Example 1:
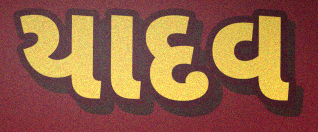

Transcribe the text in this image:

યાદવ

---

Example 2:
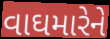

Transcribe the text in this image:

વાઘમારેને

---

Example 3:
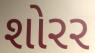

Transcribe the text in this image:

શોરર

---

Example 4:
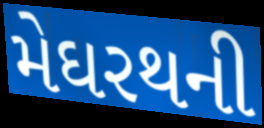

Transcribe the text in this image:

મેઘરથની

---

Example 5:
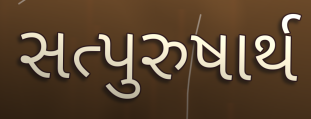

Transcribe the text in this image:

સત્પુરુષાર્થ